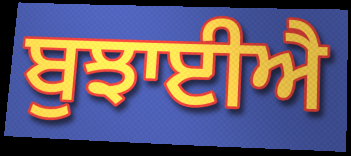
ਬੁਝਾਈਐ